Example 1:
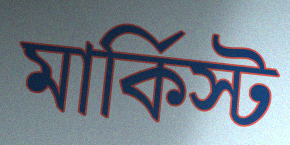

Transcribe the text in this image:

মার্কিস্ট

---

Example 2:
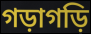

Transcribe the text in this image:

গড়াগড়ি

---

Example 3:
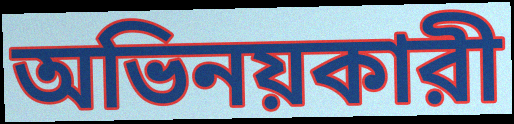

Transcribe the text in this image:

অভিনয়কারী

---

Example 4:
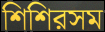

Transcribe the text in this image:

শিশিরসম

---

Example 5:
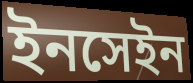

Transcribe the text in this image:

ইনসেইন